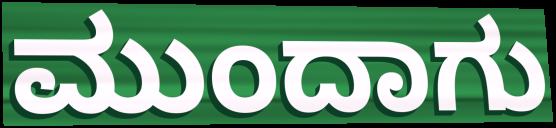
ಮುಂದಾಗು